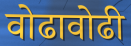
वोढावोढी